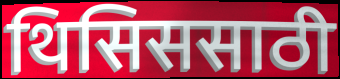
थिसिससाठी